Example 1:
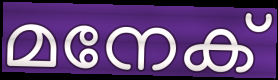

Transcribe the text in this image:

മനേക്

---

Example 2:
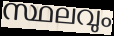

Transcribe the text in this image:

സ്ഥലവും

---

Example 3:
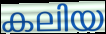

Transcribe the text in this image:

കലിയ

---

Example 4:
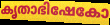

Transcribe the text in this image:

കൃതാഭിഷേകോ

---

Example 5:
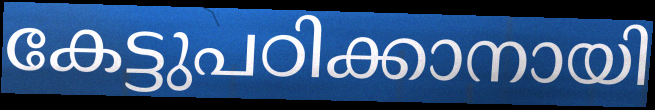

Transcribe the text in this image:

കേട്ടുപഠിക്കാനായി